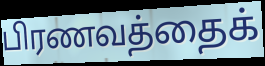
பிரணவத்தைக்